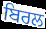
ਬਿਰਲ